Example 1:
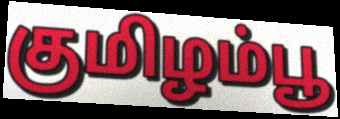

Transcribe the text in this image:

குமிழம்பூ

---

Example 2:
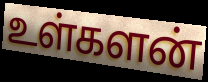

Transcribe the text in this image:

உள்களன்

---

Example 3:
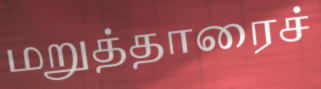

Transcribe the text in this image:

மறுத்தாரைச்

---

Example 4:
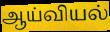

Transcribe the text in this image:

ஆய்வியல்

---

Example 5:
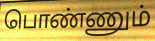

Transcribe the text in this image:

பொண்ணும்